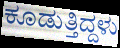
ಕೂಡುತ್ತಿದ್ದಳು